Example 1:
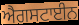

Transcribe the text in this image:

ਐਗਸਟਾਈਨ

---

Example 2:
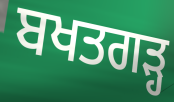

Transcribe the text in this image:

ਬਖਤਗੜ੍ਹ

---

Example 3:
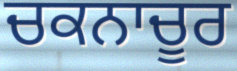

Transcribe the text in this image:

ਚਕਨਾਚੂਰ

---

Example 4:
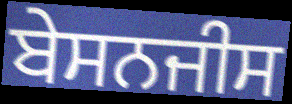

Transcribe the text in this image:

ਬੇਸਨਜੀਸ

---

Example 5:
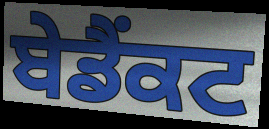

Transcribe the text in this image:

ਬੇਡੈਂਕਟ